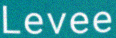
Levee